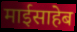
माईसाहेब